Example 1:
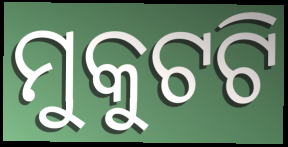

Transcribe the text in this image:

ମୁକୁଟଟି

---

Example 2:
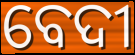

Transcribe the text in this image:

ବେଦୀ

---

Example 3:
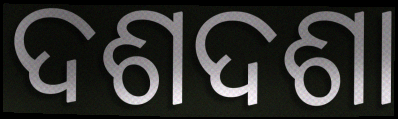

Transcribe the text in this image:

ଦଶଦଶା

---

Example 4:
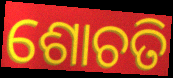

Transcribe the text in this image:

ଶୋଚତି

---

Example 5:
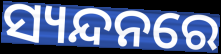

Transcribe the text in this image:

ସ୍ୟନ୍ଦନରେ